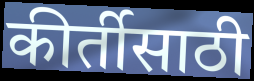
कीर्तीसाठी